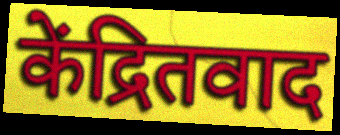
केंद्रितवाद